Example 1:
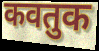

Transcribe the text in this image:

कवतुक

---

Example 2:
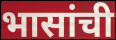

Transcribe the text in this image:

भासांची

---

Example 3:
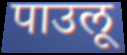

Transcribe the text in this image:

पाउलू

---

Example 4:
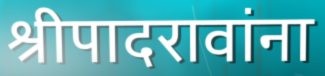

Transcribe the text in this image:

श्रीपादरावांना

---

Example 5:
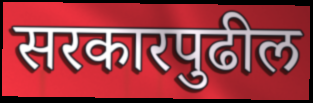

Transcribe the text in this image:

सरकारपुढील